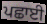
ਪਛਾਈ